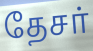
தேசர்